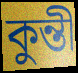
কুন্তী